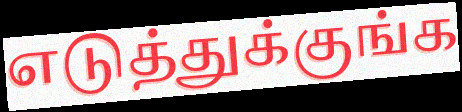
எடுத்துக்குங்க